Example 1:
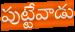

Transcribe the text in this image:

పుట్టేవాడు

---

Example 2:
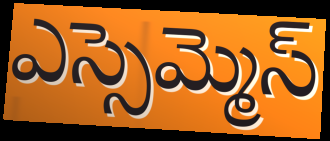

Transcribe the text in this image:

ఎస్సెమ్మెస్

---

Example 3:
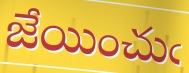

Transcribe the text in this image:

జేయించుఁ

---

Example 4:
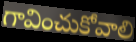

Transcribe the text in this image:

గావించుకోవాలి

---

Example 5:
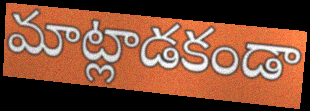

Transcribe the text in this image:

మాట్లాడకండా